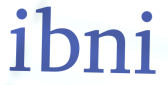
ibni